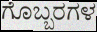
ಗೊಬ್ಬರಗಳ